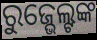
ରୁଜ୍ଭେଲ୍ଟଙ୍କ